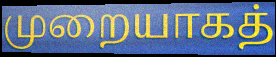
முறையாகத்